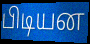
பிடியன